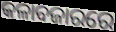
କଳାବଜାରରେ